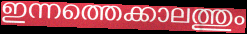
ഇന്നത്തെക്കാലത്തും